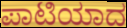
ಪಾಟಿಯಾದ